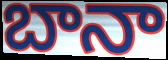
బానా